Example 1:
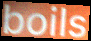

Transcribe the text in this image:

boils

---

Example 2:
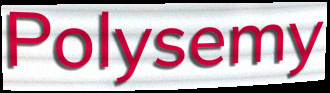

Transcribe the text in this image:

Polysemy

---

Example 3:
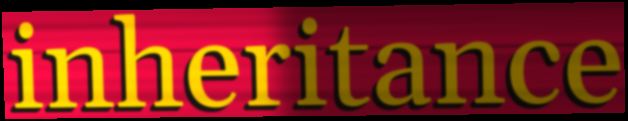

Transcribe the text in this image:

inheritance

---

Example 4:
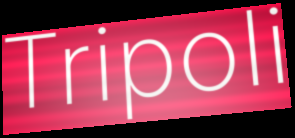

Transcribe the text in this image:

Tripoli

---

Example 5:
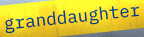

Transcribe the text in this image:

granddaughter